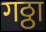
गठ्ठा